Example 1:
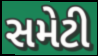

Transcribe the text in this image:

સમેટી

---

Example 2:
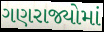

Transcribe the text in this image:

ગણરાજ્યોમાં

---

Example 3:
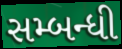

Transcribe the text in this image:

સમ્બન્ધી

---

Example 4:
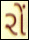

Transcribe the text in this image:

રોં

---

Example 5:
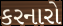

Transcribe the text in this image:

કરનારો